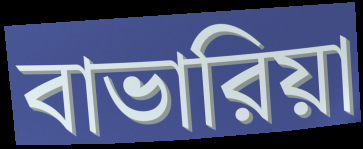
বাভারিয়া